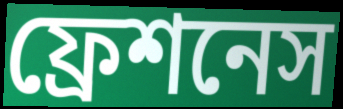
ফ্রেশনেস